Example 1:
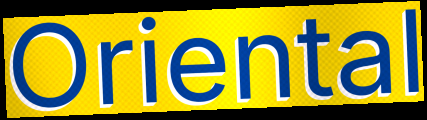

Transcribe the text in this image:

Oriental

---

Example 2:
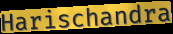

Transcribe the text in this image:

Harischandra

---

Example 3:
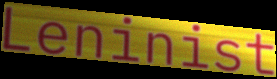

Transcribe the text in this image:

Leninist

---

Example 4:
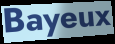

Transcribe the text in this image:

Bayeux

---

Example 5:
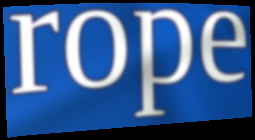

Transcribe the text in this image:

rope